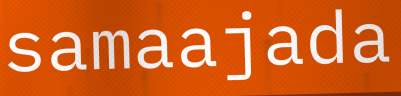
samaajada